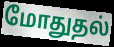
மோதுதல்